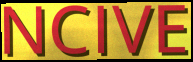
NCIVE